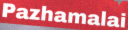
Pazhamalai